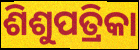
ଶିଶୁପତ୍ରିକା